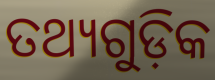
ତଥ୍ୟଗୁଡ଼ିକ